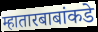
म्हातारबाबांकडे